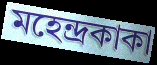
মহেন্দ্রকাকা